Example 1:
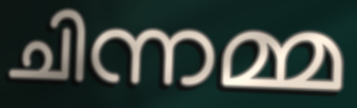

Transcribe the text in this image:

ചിന്നമ്മ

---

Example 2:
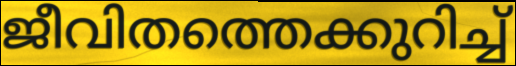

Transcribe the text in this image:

ജീവിതത്തെക്കുറിച്ച്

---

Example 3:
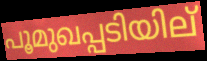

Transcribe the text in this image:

പൂമുഖപ്പടിയില്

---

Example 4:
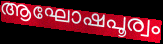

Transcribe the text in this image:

ആഘോഷപൂര്വം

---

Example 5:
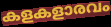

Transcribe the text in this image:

കളകളാരവം